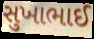
સુખાભાઈ